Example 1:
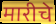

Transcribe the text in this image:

मारीचे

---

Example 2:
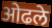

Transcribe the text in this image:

ओढले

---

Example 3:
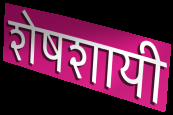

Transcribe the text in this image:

शेषशायी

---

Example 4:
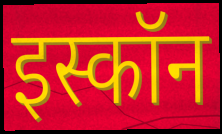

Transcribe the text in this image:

इस्कॉन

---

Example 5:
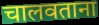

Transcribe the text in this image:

चालवताना